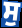
ਸੁ